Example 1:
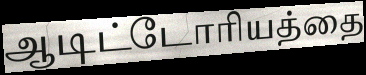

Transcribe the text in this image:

ஆடிட்டோரியத்தை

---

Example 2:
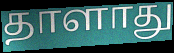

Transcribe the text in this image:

தாளாது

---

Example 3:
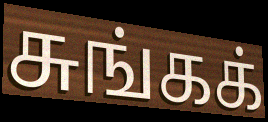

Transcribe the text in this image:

சுங்கக்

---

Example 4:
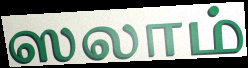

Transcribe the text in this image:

ஸலாம்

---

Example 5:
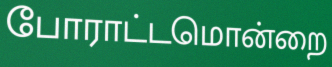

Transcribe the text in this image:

போராட்டமொன்றை